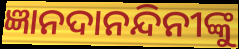
ଜ୍ଞାନଦାନନ୍ଦିନୀଙ୍କୁ